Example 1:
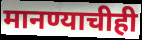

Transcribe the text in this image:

मानण्याचीही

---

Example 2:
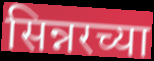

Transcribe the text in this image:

सिन्नरच्या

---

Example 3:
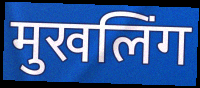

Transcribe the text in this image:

मुखलिंग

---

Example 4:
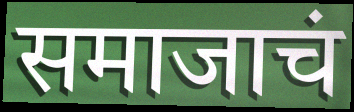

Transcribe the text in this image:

समाजाचं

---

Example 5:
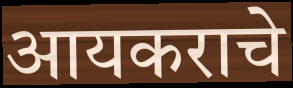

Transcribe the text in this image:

आयकराचे